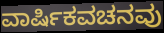
ವಾರ್ಷಿಕವಚನವು